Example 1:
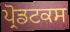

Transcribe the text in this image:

ਪ੍ਰੋਡਟਕਸ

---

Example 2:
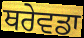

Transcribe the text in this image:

ਥਰੇਵਡਾ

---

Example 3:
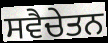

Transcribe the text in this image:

ਸਵੈਚੇਤਨ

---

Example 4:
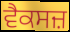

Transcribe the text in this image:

ਵੈਕਸਜ਼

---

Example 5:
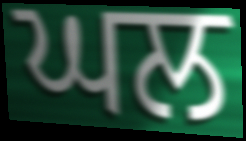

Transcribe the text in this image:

ਘਲ